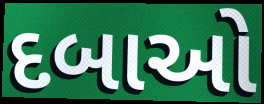
દબાઓ